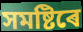
সমষ্টিৰে